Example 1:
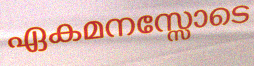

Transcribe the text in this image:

ഏകമനസ്സോടെ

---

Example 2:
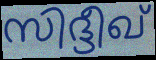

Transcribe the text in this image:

സിദ്ദീഖ്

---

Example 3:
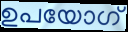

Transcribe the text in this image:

ഉപയോഗ്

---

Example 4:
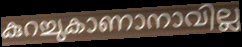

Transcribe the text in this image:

കുറച്ചുകാണാനാവില്ല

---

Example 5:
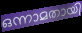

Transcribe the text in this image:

ഒന്നാമതായി